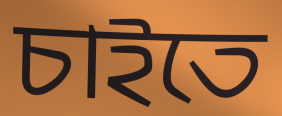
চাইতে